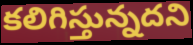
కలిగిస్తున్నదని